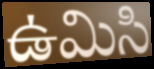
ఉమిసి